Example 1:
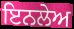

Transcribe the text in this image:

ਇਨਲੇਅ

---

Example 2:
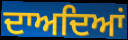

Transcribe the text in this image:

ਦਾਅਦਿਆਂ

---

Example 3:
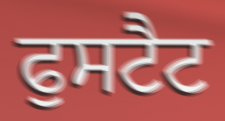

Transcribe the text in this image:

ਫੁਸਟੈਟ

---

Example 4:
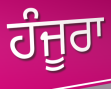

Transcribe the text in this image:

ਹੰਜੂਰਾ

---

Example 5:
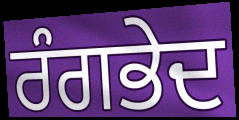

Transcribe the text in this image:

ਰੰਗਭੇਦ